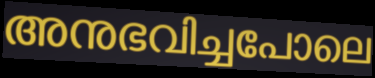
അനുഭവിച്ചപോലെ